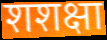
शशक्षा